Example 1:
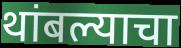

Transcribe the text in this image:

थांबल्याचा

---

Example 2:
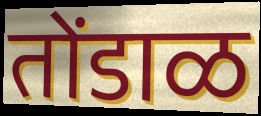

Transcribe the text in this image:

तोंडाळ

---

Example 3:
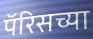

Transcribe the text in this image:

पॅरिसच्या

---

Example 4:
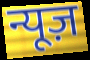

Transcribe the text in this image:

न्यूज़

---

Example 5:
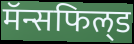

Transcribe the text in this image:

मॅन्सफिल्ड